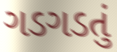
ગડગડતું